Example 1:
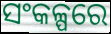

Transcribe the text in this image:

ସଂକଳ୍ପରେ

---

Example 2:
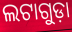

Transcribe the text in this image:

ଲଟାଗୁଡ଼ା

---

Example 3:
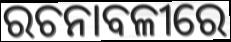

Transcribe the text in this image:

ରଚନାବଳୀରେ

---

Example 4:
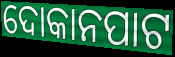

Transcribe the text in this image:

ଦୋକାନପାଟ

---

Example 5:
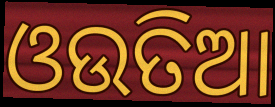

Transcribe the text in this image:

ଓଉତିଆ